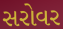
સરોવર